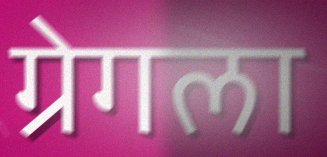
ग्रेगला